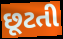
છૂટતી